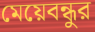
মেয়েবন্ধুর